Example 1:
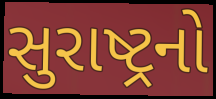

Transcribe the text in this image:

સુરાષ્ટ્રનો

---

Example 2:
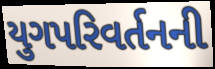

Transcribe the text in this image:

યુગપરિવર્તનની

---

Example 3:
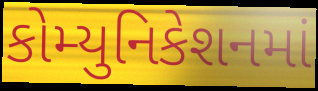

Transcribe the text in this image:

કોમ્યુનિકેશનમાં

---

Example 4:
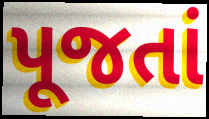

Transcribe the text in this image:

પૂજતાં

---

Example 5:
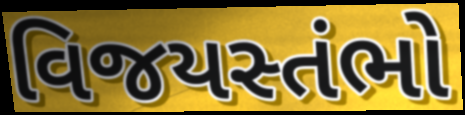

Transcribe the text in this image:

વિજયસ્તંભો